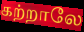
கற்றாலே